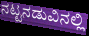
ನಟ್ಟನಡುವಿನಲ್ಲಿ